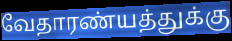
வேதாரண்யத்துக்கு